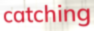
catching